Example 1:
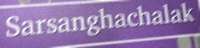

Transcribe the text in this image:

Sarsanghachalak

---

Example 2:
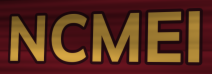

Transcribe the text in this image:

NCMEI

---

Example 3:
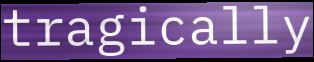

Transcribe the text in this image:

tragically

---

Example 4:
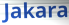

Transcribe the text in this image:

Jakara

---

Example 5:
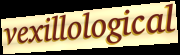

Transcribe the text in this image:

vexillological